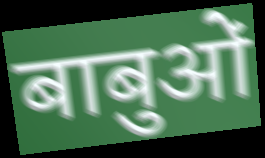
बाबुओं